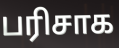
பரிசாக